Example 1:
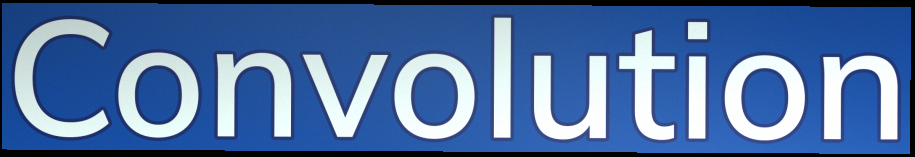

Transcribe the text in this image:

Convolution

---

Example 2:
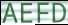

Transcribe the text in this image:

AEFD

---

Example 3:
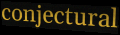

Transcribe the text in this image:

conjectural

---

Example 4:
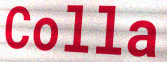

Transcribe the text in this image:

Colla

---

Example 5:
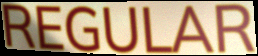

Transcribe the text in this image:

REGULAR